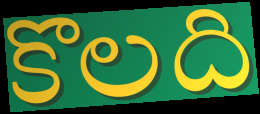
కొలది